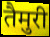
तैमुरी